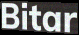
Bitar